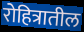
रोहित्रातील